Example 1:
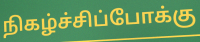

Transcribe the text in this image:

நிகழ்ச்சிப்போக்கு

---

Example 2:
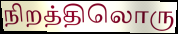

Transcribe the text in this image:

நிறத்திலொரு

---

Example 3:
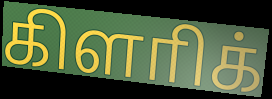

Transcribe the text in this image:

கிளரிக்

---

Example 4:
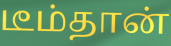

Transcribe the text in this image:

டீம்தான்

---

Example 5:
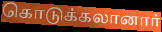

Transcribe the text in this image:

கொடுக்கலானார்